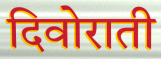
दिवोराती